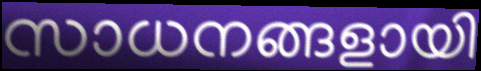
സാധനങ്ങളായി